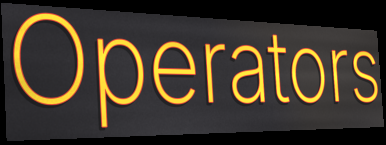
Operators